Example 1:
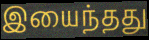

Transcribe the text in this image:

இயைந்தது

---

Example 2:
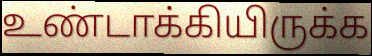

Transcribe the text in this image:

உண்டாக்கியிருக்க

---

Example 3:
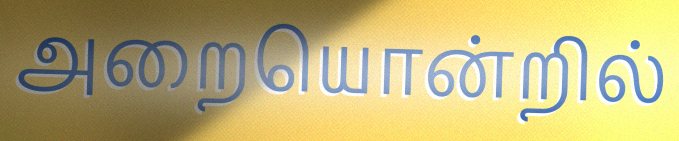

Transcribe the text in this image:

அறையொன்றில்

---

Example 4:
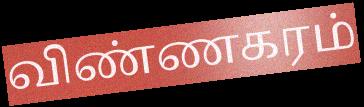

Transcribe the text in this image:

விண்ணகரம்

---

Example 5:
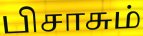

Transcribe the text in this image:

பிசாசும்